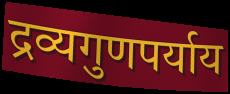
द्रव्यगुणपर्याय